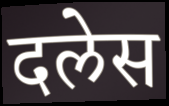
दलेस